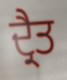
ਦ੍ਰੈਤ